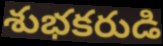
శుభకరుడి